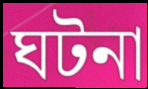
ঘটনা